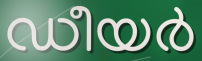
ഡീയർ